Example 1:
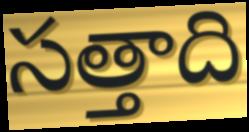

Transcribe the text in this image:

సత్తాది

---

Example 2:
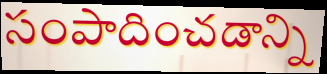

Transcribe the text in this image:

సంపాదించడాన్ని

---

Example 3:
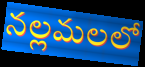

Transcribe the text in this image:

నల్లమలలో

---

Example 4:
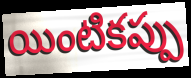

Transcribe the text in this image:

యింటికప్పు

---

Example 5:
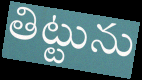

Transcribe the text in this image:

తిట్టును